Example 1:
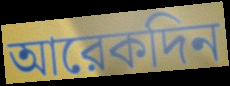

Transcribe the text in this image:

আরেকদিন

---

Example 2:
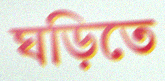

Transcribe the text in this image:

ঘড়িতে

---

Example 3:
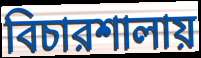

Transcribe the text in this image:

বিচারশালায়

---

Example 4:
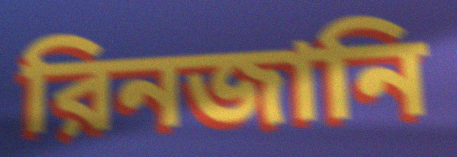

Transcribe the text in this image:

রিনজানি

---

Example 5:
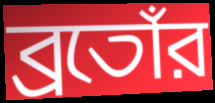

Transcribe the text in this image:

ব্রতোঁর